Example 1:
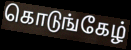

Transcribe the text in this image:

கொடுங்கேழ்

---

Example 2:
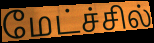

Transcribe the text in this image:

மேட்ச்சில்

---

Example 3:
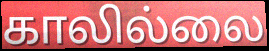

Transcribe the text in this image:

காலில்லை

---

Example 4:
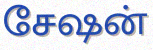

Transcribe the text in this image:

சேஷன்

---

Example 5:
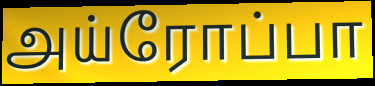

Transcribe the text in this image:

அய்ரோப்பா